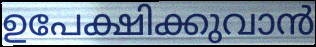
ഉപേക്ഷിക്കുവാൻ